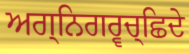
ਅਗ੍ਨਿਗਰ੍ਵਚ੍ਛਿਦੇ